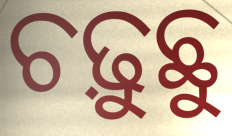
ଚଢ଼ୁଛୁ